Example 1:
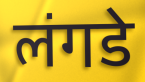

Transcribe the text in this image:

लंगडे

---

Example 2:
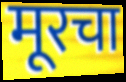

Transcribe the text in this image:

मूरचा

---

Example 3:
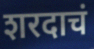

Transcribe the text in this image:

शरदाचं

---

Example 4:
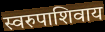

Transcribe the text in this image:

स्वरुपाशिवाय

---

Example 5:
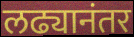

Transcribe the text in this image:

लढ्यानंतर